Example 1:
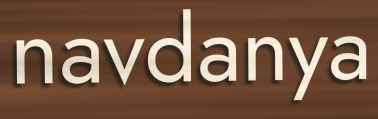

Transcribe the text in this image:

navdanya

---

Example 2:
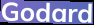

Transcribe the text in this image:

Godard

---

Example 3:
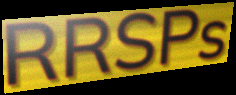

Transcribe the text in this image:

RRSPs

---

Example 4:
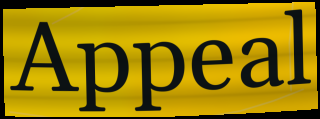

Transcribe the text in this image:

Appeal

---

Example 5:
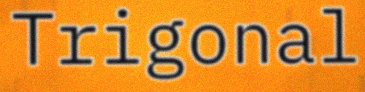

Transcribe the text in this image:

Trigonal